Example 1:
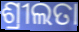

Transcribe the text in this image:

ଶ୍ରୀଲତା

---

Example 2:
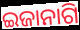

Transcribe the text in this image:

ଇଜାନାଗି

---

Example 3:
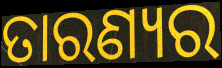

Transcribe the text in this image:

ତାରଣ୍ୟର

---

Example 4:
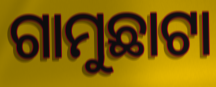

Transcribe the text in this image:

ଗାମୁଛାଟା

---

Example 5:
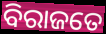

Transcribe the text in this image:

ବିରାଜତେ